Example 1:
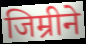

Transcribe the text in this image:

जिम्रीने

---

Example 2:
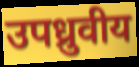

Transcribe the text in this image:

उपध्रुवीय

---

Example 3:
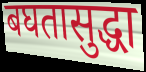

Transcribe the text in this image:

बघतासुद्धा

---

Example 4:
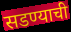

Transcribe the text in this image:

सडण्याची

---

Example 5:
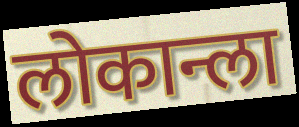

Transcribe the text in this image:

लोकान्ला